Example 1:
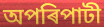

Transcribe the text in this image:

অপৰিপাটী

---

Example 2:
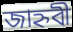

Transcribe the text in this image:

জাহ্নবী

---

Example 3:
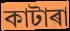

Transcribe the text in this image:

কাটাৰা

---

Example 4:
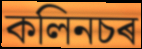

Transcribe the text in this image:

কলিনচৰ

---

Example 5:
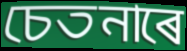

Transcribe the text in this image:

চেতনাৰে